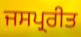
ਜਸਪ੍ਰਰੀਤ